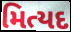
મિત્યદ